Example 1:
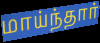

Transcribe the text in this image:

மாய்ந்தார்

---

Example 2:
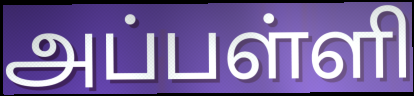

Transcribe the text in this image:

அப்பள்ளி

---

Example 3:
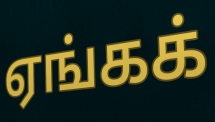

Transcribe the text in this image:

ஏங்கக்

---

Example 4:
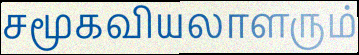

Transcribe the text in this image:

சமூகவியலாளரும்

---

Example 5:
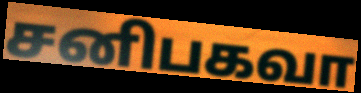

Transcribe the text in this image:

சனிபகவா